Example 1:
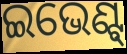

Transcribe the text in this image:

ଇଭେଣ୍ଟ୍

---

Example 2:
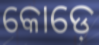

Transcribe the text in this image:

କୋଡ଼େ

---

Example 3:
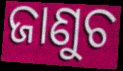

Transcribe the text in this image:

ଜାଣୁଚ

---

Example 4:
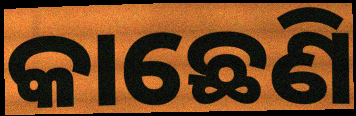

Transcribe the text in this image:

କାଛେଣି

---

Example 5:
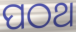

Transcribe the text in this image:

ପଠଥ